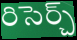
రిసెర్చ్